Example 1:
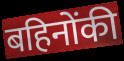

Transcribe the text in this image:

बहिनोंकी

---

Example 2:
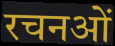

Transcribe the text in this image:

रचनओं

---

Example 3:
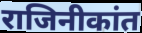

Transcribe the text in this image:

राजिनीकांत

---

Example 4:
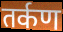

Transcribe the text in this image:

तर्कण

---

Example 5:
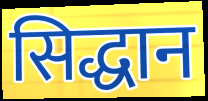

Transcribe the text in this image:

सिद्धान